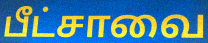
பீட்சாவை